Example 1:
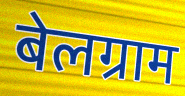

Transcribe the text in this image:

बेलग्राम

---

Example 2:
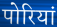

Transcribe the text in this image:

पोरियां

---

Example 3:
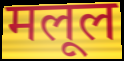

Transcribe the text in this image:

मलूल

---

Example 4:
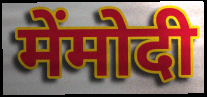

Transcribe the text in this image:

मेंमोदी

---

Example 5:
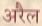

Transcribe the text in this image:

अरैल